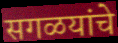
सगळयांचे